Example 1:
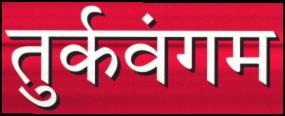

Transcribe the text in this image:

तुर्कवंगम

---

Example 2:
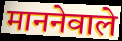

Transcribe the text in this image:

माननेवाले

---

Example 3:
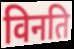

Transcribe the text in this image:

विनति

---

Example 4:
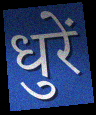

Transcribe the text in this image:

धुरें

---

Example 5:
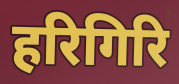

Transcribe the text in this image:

हरिगिरि